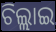
ଚିଲ୍ଲାଇ